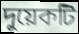
দুয়েকটি